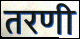
तरणी